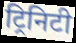
ट्रिनिटी